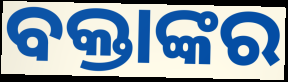
ବକ୍ତାଙ୍କର